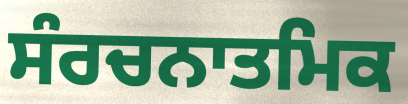
ਸੰਰਚਨਾਤਮਿਕ